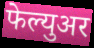
फेल्युअर